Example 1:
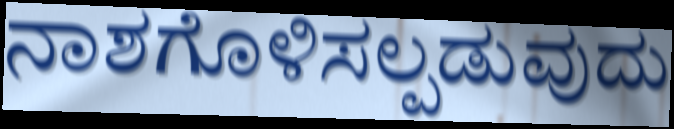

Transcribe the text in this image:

ನಾಶಗೊಳಿಸಲ್ಪಡುವುದು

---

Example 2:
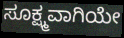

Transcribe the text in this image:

ಸೂಕ್ಷ್ಮವಾಗಿಯೇ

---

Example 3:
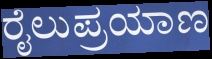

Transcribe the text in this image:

ರೈಲುಪ್ರಯಾಣ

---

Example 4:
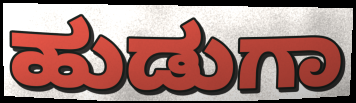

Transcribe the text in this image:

ಹುಡುಗಾ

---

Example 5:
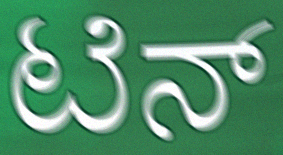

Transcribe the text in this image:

ಟೆನ್